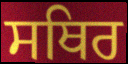
ਸਥਿਰ